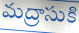
మద్రాసుకి